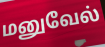
மனுவேல்